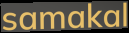
samakal